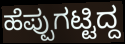
ಹೆಪ್ಪುಗಟ್ಟಿದ್ದ